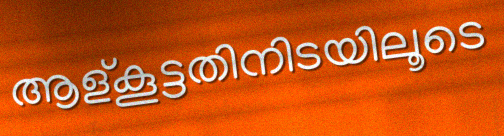
ആള്കൂട്ടതിനിടയിലൂടെ